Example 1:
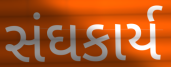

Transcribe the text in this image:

સંઘકાર્ય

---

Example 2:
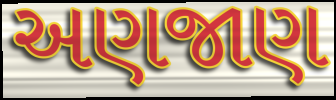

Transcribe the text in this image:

અણજાણ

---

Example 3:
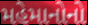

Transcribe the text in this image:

મહેમાનોનો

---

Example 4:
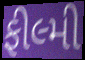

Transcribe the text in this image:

ફીલ્મી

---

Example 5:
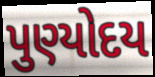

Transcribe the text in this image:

પુણ્યોદય